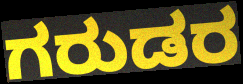
ಗರುಡರ